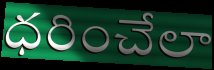
ధరించేలా